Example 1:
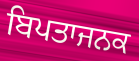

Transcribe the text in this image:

ਬਿਪਤਾਜਨਕ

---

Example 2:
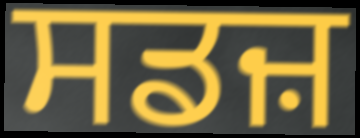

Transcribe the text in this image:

ਸਡਜ਼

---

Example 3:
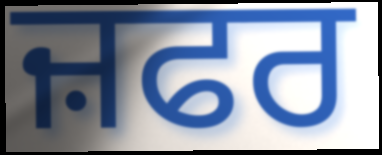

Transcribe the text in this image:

ਜ਼ਫਰ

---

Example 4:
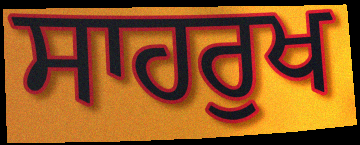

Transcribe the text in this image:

ਸਾਹਰੁਖ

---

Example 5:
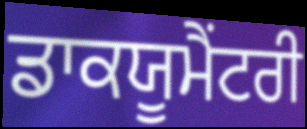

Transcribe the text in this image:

ਡਾਕਯੂਮੈਂਟਰੀ